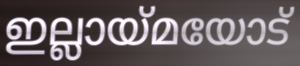
ഇല്ലായ്മയോട്